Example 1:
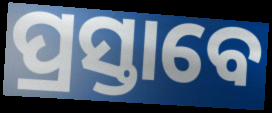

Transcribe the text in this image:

ପ୍ରସ୍ତାବେ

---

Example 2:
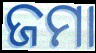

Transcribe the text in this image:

ଜମା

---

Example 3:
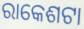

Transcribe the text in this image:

ରାକେଶଟା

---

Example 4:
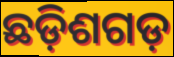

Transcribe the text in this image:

ଛଡ଼ିଶଗଡ଼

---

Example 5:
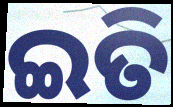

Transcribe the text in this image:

ଇତି